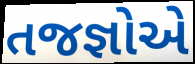
તજજ્ઞોએ